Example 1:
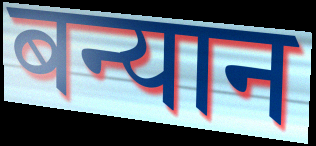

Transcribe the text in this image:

बन्यान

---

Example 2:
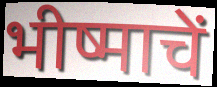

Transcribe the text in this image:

भीष्माचें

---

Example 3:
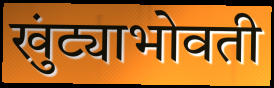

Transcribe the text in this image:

खुंट्याभोवती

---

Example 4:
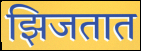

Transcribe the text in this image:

झिजतात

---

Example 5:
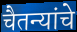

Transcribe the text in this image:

चैतन्यांचे